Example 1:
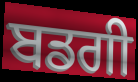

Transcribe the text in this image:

ਬਡਗੀ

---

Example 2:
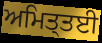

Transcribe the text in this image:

ਅਮਿਤ੍ਤਈ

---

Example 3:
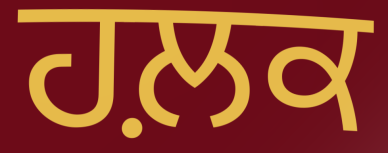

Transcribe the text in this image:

ਹਲ਼ਕ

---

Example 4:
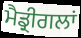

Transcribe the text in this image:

ਮੈਡ੍ਰੀਗਲਾਂ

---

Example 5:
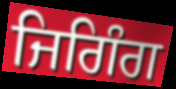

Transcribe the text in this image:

ਜਿਗਿੰਗ